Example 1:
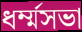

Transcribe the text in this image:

ধর্ম্মসভা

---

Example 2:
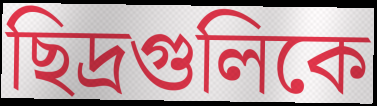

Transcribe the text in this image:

ছিদ্রগুলিকে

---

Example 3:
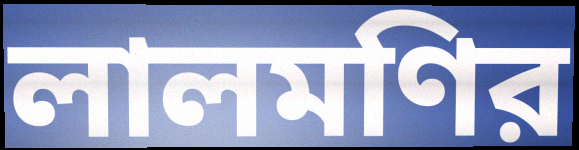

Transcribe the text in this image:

লালমণির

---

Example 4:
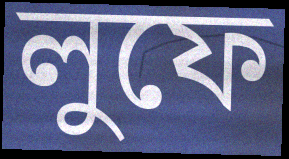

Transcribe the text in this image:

লুফে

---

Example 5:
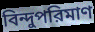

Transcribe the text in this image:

বিন্দুপরিমাণ